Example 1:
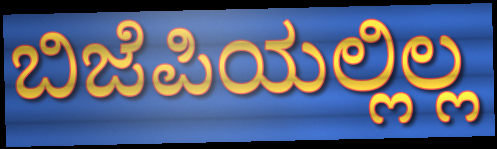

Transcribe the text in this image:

ಬಿಜೆಪಿಯಲ್ಲಿಲ್ಲ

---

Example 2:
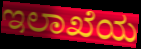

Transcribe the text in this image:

ಇಲಾಖೆಯ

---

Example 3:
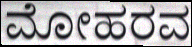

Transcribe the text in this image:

ಮೋಹರವ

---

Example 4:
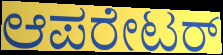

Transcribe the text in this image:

ಆಪರೇಟರ್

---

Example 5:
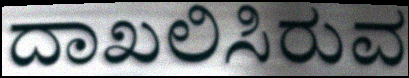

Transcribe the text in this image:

ದಾಖಲಿಸಿರುವ